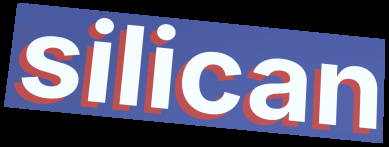
silican